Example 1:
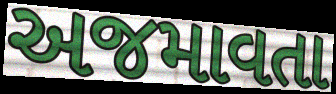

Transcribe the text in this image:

અજમાવતા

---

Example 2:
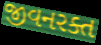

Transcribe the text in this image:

જીવનરક્ત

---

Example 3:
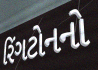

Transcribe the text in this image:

રિંગટોનનો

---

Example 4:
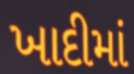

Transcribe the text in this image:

ખાદીમાં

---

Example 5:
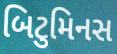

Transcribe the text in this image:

બિટુમિનસ